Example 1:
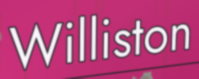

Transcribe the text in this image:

Williston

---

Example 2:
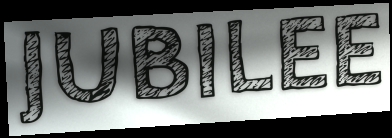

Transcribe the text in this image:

JUBILEE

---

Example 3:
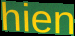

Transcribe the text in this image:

hien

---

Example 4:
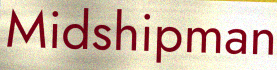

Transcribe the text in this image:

Midshipman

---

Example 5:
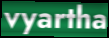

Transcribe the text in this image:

vyartha